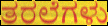
ತರಲೆಗಳು